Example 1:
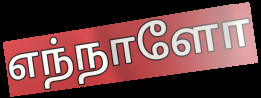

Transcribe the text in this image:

எந்நாளோ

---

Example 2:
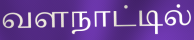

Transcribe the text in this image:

வளநாட்டில்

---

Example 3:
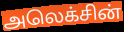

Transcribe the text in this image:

அலெக்சின்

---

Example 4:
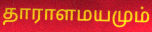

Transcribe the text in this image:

தாராளமயமும்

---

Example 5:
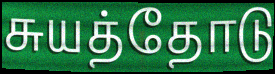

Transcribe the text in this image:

சுயத்தோடு